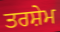
ਤਰਸ਼ੇਮ